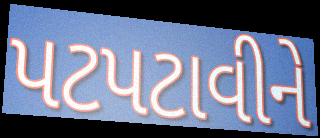
પટપટાવીને